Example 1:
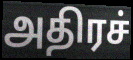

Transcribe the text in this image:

அதிரச்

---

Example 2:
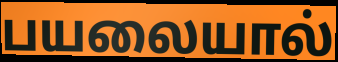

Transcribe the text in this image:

பயலையால்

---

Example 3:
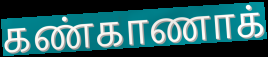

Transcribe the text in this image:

கண்காணாக்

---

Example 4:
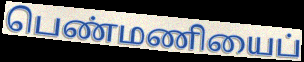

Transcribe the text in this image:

பெண்மணியைப்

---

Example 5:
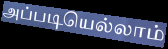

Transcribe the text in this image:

அப்படியெல்லாம்